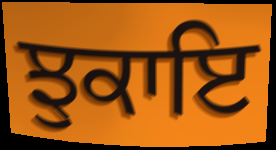
ਝੁਕਾਇ